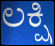
ಲಕ್ಷಿ